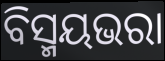
ବିସ୍ମୟଭରା